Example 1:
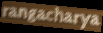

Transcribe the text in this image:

rangacharya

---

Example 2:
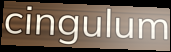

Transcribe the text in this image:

cingulum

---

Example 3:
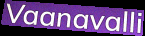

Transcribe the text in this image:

Vaanavalli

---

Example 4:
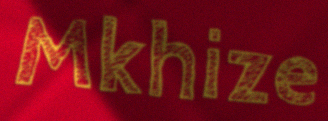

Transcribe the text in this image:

Mkhize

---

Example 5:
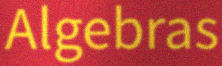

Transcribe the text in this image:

Algebras